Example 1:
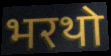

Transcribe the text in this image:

भरथो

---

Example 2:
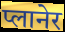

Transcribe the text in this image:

प्लानेर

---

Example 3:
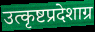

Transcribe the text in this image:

उत्कृष्टप्रदेशाग्र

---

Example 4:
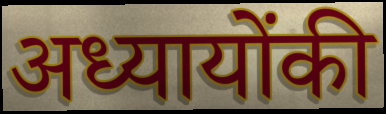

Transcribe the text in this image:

अध्यायोंकी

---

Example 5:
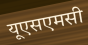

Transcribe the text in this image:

यूएसएमसी